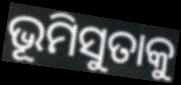
ଭୂମିସୁତାକୁ